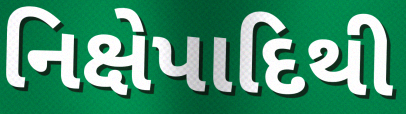
નિક્ષેપાદિથી